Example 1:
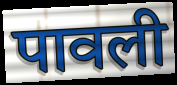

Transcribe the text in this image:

पावली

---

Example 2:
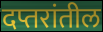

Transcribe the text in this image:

दप्तरांतील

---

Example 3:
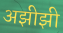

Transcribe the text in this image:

अझीझी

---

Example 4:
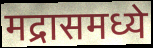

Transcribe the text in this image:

मद्रासमध्ये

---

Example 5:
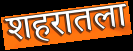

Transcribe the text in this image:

शहरातला